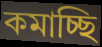
কমাচ্ছি